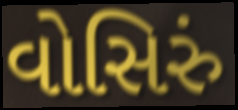
વોસિરું